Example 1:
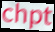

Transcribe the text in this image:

chpt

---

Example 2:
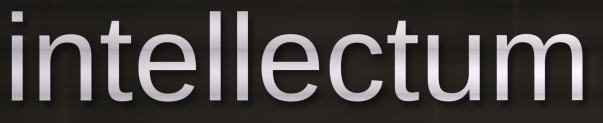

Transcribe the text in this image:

intellectum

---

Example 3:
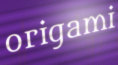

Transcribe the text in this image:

origami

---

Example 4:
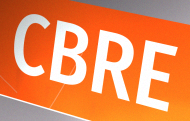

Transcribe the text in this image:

CBRE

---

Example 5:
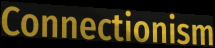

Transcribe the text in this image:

Connectionism